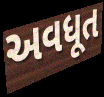
અવધૂત